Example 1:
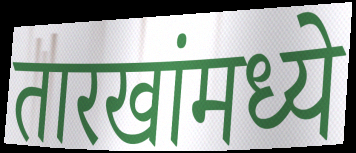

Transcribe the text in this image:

तारखांमध्ये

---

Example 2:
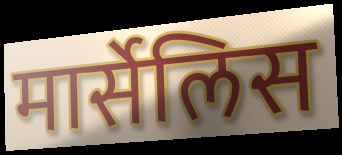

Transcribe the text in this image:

मार्सेलिस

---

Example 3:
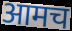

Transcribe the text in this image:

आमच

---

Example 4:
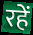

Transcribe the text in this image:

रहें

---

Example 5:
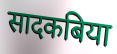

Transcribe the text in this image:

सादकबिया